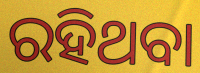
ରହିଥବା